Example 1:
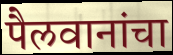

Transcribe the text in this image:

पैलवानांचा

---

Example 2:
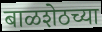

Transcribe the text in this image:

बाळशेठच्या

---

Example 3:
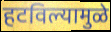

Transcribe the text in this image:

हटविल्यामुळे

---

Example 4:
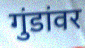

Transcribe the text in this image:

गुंडांवर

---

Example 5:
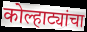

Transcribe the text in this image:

कोल्हाट्यांचा